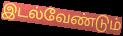
இடல்வேண்டும்